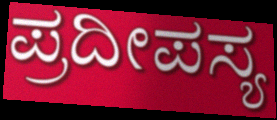
ಪ್ರದೀಪಸ್ಯ